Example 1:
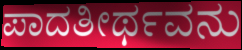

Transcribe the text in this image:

ಪಾದತೀರ್ಥವನು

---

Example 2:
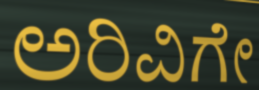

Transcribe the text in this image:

ಅರಿವಿಗೇ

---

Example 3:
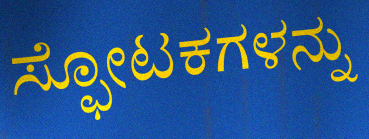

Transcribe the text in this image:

ಸ್ಫೋಟಕಗಳನ್ನು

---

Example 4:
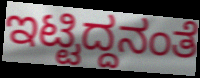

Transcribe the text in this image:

ಇಟ್ಟಿದ್ದನಂತೆ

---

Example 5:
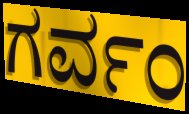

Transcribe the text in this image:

ಗರ್ವಂ